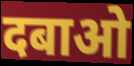
दबाओ